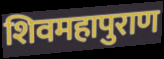
शिवमहापुराण